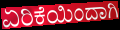
ಏರಿಕೆಯಿಂದಾಗಿ